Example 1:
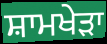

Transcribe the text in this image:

ਸ਼ਾਮਖੇੜਾ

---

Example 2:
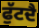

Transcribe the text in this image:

ਫੁੱਟਦੈ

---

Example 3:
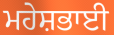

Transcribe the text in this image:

ਮਹੇਸ਼ਭਾਈ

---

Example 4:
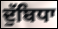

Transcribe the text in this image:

ਦੁੱਬਿਧਾ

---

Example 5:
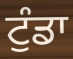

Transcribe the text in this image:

ਟੁੰਡਾ